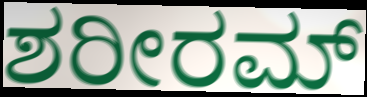
ಶರೀರಮ್